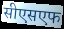
सीएसएफ